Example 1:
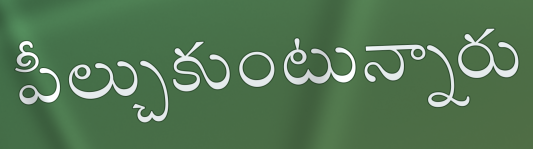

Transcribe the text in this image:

పీల్చుకుంటున్నారు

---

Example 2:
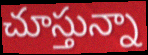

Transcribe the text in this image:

చూస్తున్నా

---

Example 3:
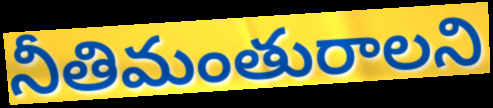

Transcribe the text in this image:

నీతిమంతురాలని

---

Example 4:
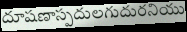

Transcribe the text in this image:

దూషణాస్పదులగుదురనియు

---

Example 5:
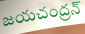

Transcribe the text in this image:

జయచంద్రన్